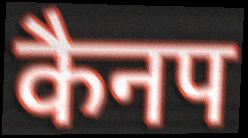
कैनप